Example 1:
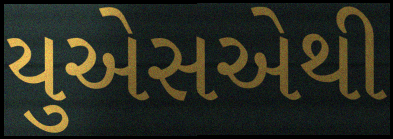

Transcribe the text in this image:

યુએસએથી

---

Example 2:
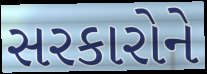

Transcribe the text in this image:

સરકારોને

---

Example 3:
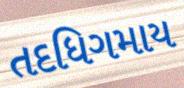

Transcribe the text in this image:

તદધિગમાય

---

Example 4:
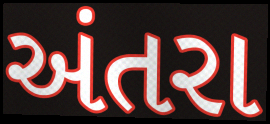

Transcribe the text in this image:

અંતરા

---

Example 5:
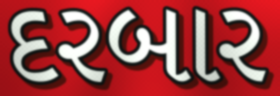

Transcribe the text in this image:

દરબાર